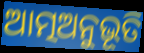
ଆତ୍ମଅନୁଭୂତି